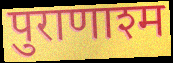
पुराणाश्म